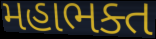
મહાભક્ત